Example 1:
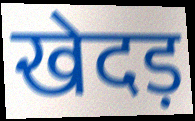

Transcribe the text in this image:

खेदड़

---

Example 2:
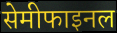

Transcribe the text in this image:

सेमीफाइनल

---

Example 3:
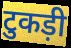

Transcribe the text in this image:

टुकड़ी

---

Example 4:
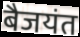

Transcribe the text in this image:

बैजयंत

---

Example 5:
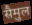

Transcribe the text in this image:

सैमुल